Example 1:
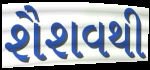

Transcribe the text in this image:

શૈશવથી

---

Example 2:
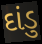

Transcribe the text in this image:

દાંડુ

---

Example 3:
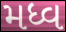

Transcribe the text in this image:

મધ્વ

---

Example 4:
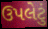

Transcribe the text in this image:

ઉપલેટું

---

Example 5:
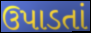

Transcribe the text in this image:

ઉપાડતાં